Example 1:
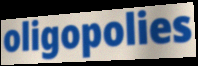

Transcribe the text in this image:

oligopolies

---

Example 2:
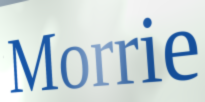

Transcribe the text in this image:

Morrie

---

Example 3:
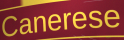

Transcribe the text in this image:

Canerese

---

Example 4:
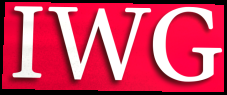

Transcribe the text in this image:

IWG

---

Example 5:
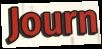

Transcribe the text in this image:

Journ